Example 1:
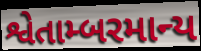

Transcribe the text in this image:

શ્વેતામ્બરમાન્ય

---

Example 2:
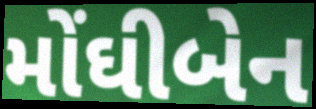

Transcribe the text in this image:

મોંઘીબેન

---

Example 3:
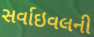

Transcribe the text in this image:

સર્વાઇવલની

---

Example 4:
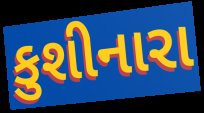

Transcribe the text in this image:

કુશીનારા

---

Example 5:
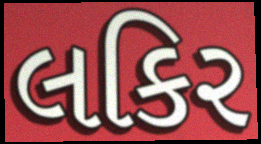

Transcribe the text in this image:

લકિર